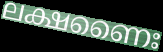
ലക്ഷണൈഃ